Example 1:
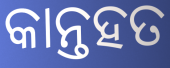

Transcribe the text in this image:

କାନ୍ତହତ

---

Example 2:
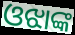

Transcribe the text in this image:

ଓଝାଙ୍କ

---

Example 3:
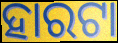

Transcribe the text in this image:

ହାରଟା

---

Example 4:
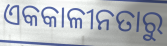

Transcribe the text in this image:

ଏକକାଳୀନତାରୁ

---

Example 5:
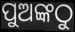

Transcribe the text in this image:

ପୁଅଙ୍କଠୁ